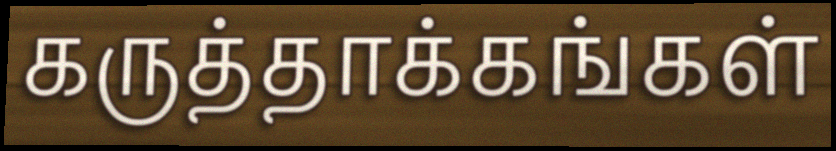
கருத்தாக்கங்கள்